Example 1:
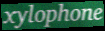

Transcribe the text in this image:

xylophone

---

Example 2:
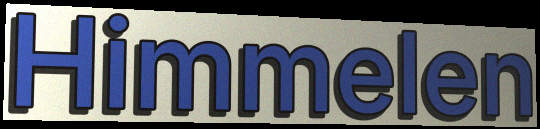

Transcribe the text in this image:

Himmelen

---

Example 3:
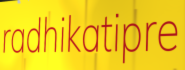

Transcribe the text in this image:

radhikatipre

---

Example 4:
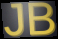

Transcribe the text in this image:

JB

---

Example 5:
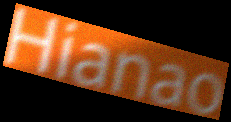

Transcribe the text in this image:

Hianao